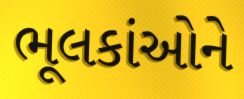
ભૂલકાંઓને